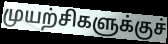
முயற்சிகளுக்குச்